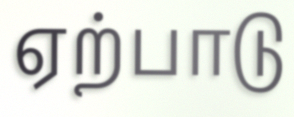
ஏற்பாடு